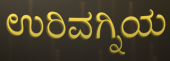
ಉರಿವಗ್ನಿಯ